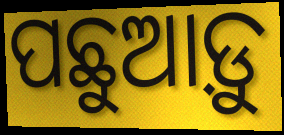
ପଛୁଆଡ଼ୁ